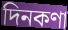
দিনকণা